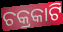
ଚକ୍ରକାଟି